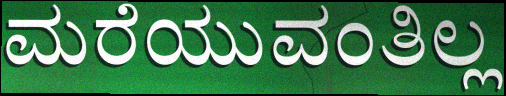
ಮರೆಯುವಂತಿಲ್ಲ